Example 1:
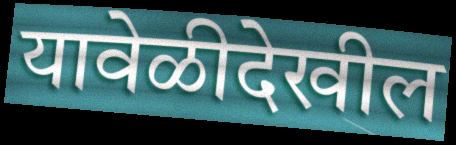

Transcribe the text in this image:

यावेळीदेखील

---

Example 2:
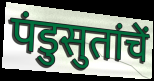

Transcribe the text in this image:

पंडुसुतांचें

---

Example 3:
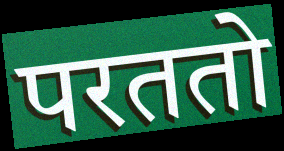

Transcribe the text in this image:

परततो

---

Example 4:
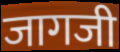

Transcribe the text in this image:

जागजी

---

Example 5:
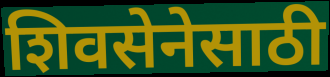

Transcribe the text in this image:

शिवसेनेसाठी